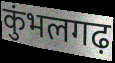
कुंभलगढ़